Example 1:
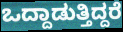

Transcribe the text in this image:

ಒದ್ದಾಡುತ್ತಿದ್ದರೆ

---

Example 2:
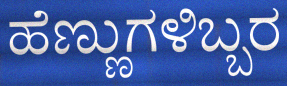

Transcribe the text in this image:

ಹೆಣ್ಣುಗಳಿಬ್ಬರ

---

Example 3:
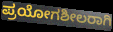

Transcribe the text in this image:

ಪ್ರಯೋಗಶೀಲರಾಗಿ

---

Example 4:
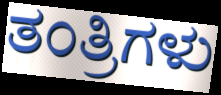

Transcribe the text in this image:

ತಂತ್ರಿಗಳು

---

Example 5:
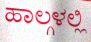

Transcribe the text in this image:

ಹಾಲ್ಗಳಲ್ಲಿ